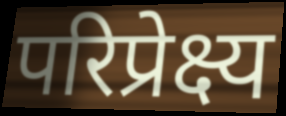
परिप्रेक्ष्य